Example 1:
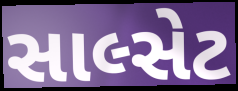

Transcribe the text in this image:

સાલ્સેટ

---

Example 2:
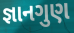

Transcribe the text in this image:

જ્ઞાનગુણ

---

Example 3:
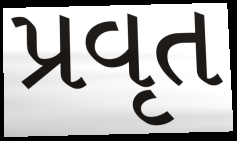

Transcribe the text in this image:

પ્રવૃત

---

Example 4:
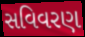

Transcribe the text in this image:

સવિવરણ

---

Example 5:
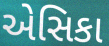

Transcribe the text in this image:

એસિકા